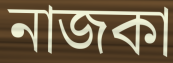
নাজকা